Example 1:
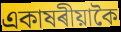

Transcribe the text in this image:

একাষৰীয়াকৈ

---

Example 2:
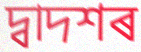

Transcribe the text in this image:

দ্বাদশৰ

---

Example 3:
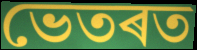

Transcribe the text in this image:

ভেতৰত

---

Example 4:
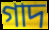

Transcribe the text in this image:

গাদ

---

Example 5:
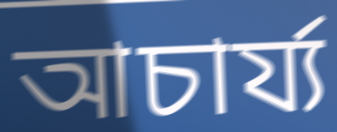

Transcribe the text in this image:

আচাৰ্য্য